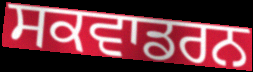
ਸਕਵਾਡਰਨ